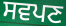
ਸਵਪਣ